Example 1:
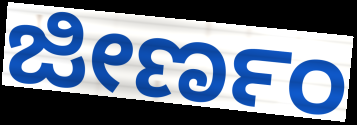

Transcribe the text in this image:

ಜೀರ್ಣಂ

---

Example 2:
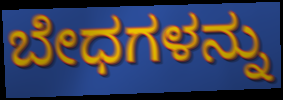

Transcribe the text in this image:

ಬೇಧಗಳನ್ನು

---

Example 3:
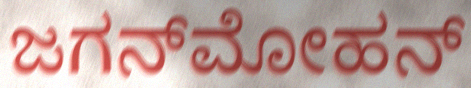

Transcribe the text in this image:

ಜಗನ್‌ಮೋಹನ್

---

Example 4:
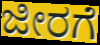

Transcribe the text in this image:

ಜೀರಗೆ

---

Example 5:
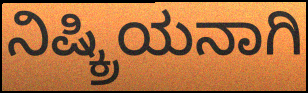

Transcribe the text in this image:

ನಿಷ್ಕ್ರಿಯನಾಗಿ